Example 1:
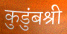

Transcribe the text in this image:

कुडुंबश्री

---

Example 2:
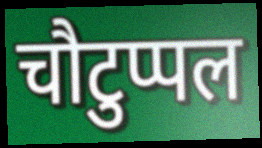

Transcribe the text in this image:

चौटुप्पल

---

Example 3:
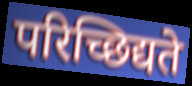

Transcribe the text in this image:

परिच्छिद्यते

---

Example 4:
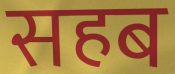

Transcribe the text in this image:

सहब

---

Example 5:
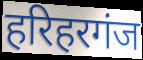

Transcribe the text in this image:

हरिहरगंज